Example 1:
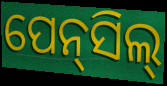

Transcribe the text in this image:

ପେନ୍‌ସିଲ୍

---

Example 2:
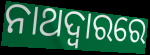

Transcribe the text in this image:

ନାଥଦ୍ୱାରରେ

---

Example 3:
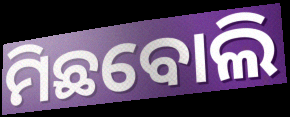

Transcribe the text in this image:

ମିଛବୋଲି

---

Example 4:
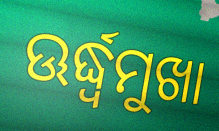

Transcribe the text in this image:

ଊର୍ଦ୍ଧ୍ବମୁଖା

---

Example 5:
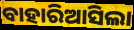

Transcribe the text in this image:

ବାହାରିଆସିଲା